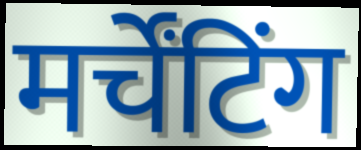
मर्चेंटिंग